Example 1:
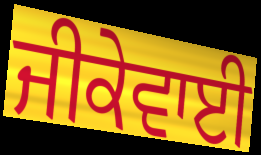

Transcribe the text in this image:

ਜੀਕੇਵਾਈ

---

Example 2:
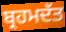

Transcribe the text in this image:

ਬ੍ਰਹਮਦੱਤ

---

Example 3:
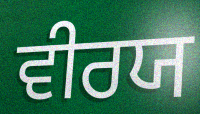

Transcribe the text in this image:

ਵੀਰਯ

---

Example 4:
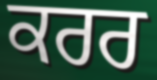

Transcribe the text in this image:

ਕਰਰ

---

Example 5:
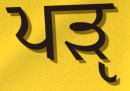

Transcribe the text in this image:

ਪੜੵ